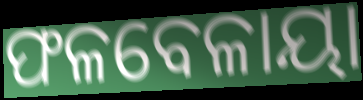
ଫଳବେଳାୟା